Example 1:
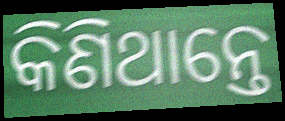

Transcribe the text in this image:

କିଣିଥାନ୍ତେ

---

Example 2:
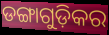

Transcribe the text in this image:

ଡଙ୍ଗାଗୁଡ଼ିକର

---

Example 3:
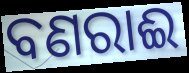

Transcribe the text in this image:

ବଣରାଈ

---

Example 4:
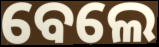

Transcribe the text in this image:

ବେଲେ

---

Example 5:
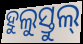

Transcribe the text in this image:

ହୁଲୁସ୍ତୁଲ୍